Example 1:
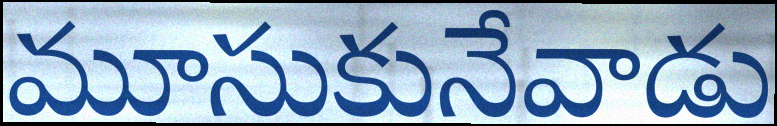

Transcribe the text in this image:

మూసుకునేవాడు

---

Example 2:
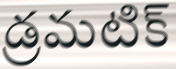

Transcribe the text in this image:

డ్రమటిక్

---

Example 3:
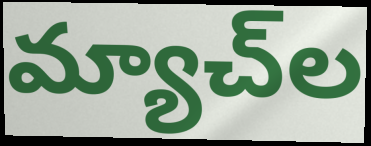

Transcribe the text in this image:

మ్యాచ్‌ల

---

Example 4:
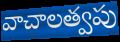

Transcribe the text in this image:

వాచాలత్వపు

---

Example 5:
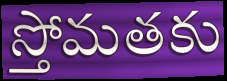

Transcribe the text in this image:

స్తోమతకు